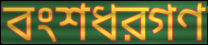
বংশধরগণ